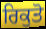
ਰਿਕੁਤੋ